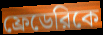
ফ্রেডেরিকে